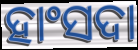
ହାଂସଦା